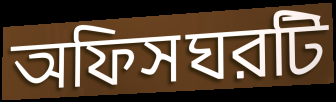
অফিসঘরটি